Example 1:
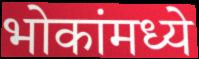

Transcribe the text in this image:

भोकांमध्ये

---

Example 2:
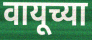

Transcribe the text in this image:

वायूच्या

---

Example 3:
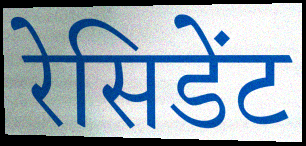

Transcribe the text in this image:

रेसिडेंट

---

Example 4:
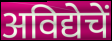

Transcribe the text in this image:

अविद्येचें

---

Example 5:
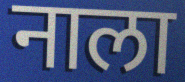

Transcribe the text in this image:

नाला